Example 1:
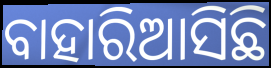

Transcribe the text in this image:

ବାହାରିଆସିଛି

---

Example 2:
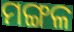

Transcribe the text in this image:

ମଙ୍ଗଳ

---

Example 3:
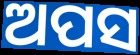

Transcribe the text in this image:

ଅପସ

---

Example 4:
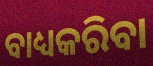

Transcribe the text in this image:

ବାଧ୍ୟକରିବା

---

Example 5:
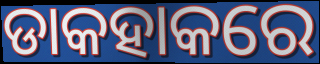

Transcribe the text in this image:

ଡାକହାକରେ